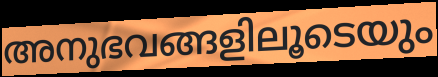
അനുഭവങ്ങളിലൂടെയും